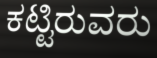
ಕಟ್ಟಿರುವರು